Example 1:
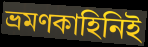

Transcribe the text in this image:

ভ্রমণকাহিনিই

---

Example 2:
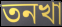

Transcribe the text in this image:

তনখা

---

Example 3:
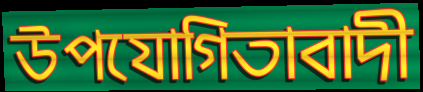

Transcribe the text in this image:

উপযোগিতাবাদী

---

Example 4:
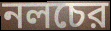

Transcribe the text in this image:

নলচের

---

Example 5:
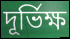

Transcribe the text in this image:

দূর্ভিক্ষ